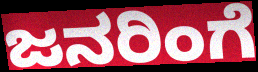
ಜನರಿಂಗೆ